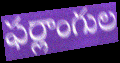
ఫర్లాంగుల